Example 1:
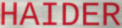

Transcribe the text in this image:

HAIDER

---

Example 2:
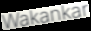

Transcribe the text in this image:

Wakankar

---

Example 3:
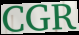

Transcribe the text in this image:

CGR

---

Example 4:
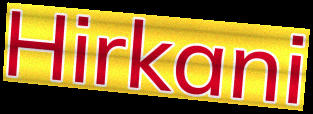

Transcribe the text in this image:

Hirkani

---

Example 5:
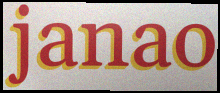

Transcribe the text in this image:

janao